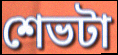
শেভটা